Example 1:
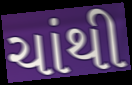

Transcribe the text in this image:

ચાંથી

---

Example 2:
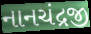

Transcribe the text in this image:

નાનચંદ્રજી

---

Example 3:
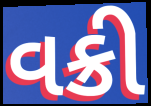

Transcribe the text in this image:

વક્રી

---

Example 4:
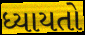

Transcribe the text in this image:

ધ્યાયતો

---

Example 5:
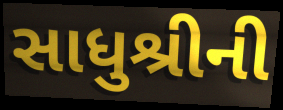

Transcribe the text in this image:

સાધુશ્રીની